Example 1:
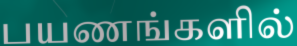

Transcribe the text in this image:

பயணங்களில்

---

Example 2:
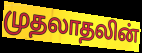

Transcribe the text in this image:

முதலாதலின்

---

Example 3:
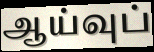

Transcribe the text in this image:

ஆய்வுப்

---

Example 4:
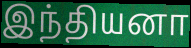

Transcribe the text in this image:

இந்தியனா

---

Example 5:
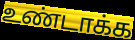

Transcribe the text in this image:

உண்டாக்க